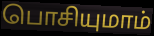
பொசியுமாம்